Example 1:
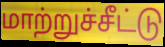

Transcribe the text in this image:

மாற்றுச்சீட்டு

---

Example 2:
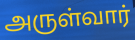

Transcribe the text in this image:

அருள்வார்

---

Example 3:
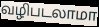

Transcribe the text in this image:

வழிபடலாமா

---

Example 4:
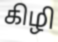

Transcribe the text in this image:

கிழி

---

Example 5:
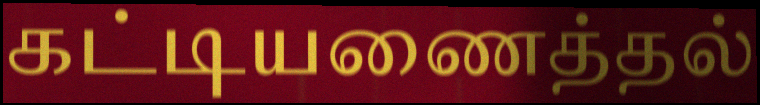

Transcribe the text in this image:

கட்டியணைத்தல்